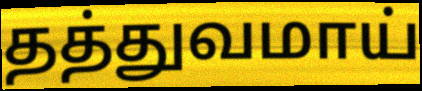
தத்துவமாய்